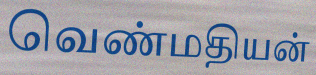
வெண்மதியன்